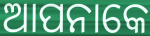
ଆପନାକେ